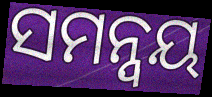
ସମନ୍ନ୍ୱୟ